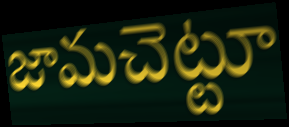
జామచెట్టూ